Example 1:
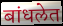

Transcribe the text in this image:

बांधलेत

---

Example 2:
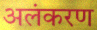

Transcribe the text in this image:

अलंकरण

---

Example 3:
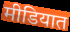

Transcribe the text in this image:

मीडियात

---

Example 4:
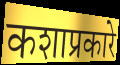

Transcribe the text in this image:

कशाप्रकारे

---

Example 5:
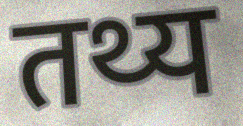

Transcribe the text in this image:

तथ्य